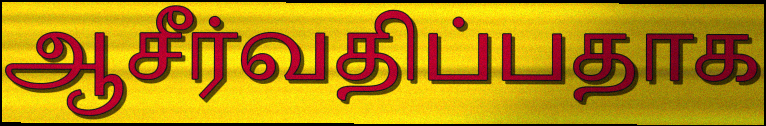
ஆசீர்வதிப்பதாக